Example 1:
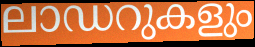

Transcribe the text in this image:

ലാഡറുകളും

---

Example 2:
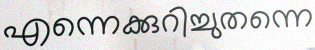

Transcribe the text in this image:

എന്നെക്കുറിച്ചുതന്നെ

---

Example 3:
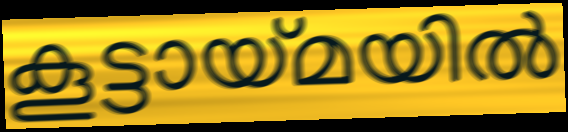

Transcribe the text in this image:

കൂട്ടായ്മയിൽ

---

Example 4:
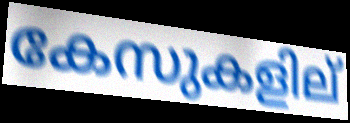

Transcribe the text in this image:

കേസുകളില്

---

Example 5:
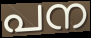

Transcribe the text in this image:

പന